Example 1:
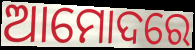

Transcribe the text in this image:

ଆମୋଦରେ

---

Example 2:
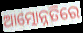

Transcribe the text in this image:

ଆତ୍ମୋନ୍ନତିରେ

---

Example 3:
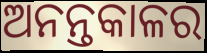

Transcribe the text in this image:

ଅନନ୍ତକାଳର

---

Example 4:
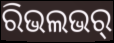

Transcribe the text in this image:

ରିଭଲଭର୍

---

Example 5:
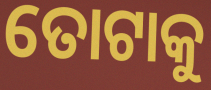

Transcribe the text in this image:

ତୋଟାକୁ